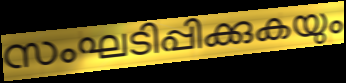
സംഘടിപ്പിക്കുകയും